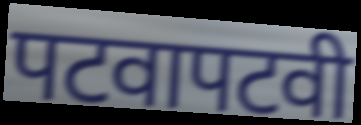
पटवापटवी